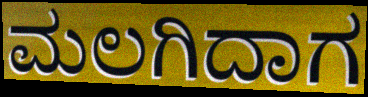
ಮಲಗಿದಾಗ